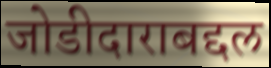
जोडीदाराबद्दल